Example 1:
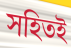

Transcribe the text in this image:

সহিতই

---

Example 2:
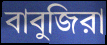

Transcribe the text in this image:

বাবুজিরা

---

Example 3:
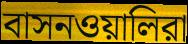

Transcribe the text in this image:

বাসনওয়ালিরা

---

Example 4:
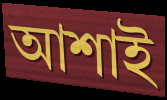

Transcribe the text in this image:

আশাই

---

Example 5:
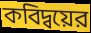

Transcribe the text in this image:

কবিদ্বয়ের